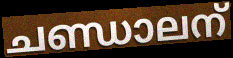
ചണ്ഡാലന്